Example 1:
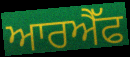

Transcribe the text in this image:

ਆਰਐੱਫ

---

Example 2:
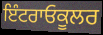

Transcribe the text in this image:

ਇੰਟਰਾਓਕੂਲਰ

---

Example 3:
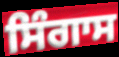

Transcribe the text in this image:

ਸਿੰਗਾਸ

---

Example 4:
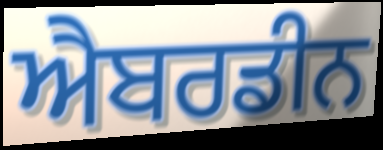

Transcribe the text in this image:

ਐਬਰਡੀਨ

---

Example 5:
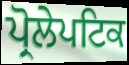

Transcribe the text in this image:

ਪ੍ਰੋਲੇਪਟਿਕ